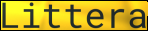
Littera